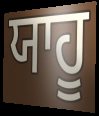
ਯਾਹੂ